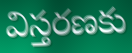
విస్తరణకు